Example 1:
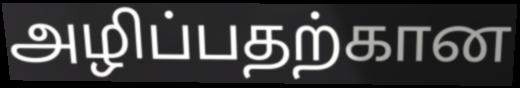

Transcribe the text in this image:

அழிப்பதற்கான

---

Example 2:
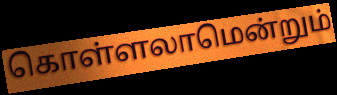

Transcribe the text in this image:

கொள்ளலாமென்றும்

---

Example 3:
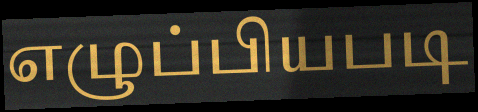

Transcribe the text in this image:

எழுப்பியபடி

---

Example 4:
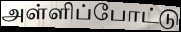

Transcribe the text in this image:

அள்ளிப்போட்டு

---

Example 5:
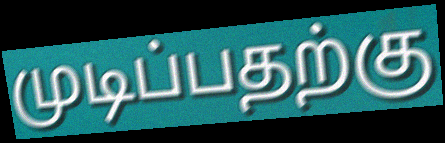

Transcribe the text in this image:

முடிப்பதற்கு